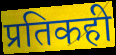
प्रतिकही